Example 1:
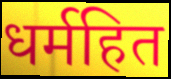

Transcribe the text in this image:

धर्महित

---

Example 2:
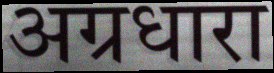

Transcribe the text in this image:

अग्रधारा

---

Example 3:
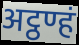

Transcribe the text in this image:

अट्ठण्हं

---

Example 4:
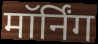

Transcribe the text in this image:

मॉर्निंग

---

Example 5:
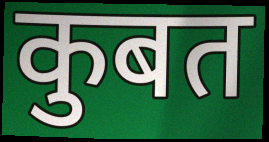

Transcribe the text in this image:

कुबत